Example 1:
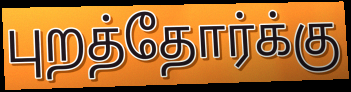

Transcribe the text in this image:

புறத்தோர்க்கு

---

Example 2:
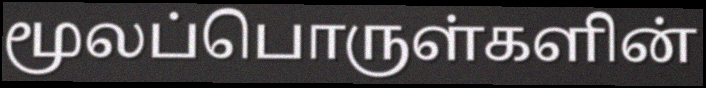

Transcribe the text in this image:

மூலப்பொருள்களின்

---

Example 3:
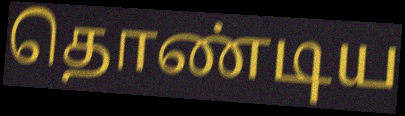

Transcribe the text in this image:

தொண்டிய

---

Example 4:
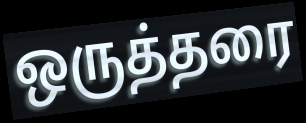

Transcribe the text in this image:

ஒருத்தரை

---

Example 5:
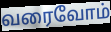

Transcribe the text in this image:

வரைவோம்